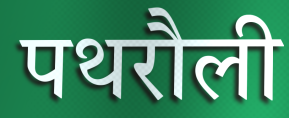
पथरौली